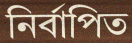
নিৰ্বাপিত